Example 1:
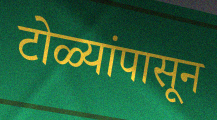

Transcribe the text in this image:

टोळ्यांपासून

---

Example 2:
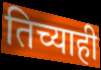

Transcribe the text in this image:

तिच्याही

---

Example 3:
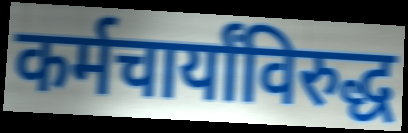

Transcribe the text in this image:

कर्मचार्यांविरुद्ध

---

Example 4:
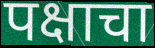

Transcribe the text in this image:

पक्षाचा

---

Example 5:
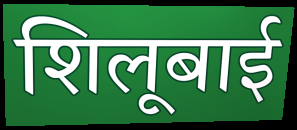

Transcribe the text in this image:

शिलूबाई